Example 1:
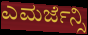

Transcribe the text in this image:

ಎಮರ್ಜೆನ್ಸಿ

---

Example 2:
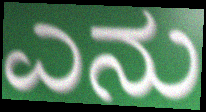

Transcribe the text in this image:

ಎನು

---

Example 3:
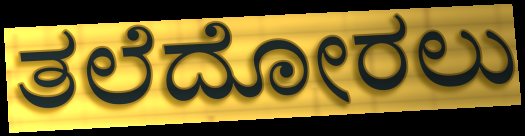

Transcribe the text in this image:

ತಲೆದೋರಲು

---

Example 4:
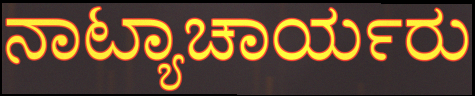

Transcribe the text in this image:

ನಾಟ್ಯಾಚಾರ್ಯರು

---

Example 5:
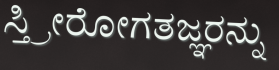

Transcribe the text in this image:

ಸ್ತ್ರೀರೋಗತಜ್ಞರನ್ನು